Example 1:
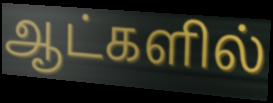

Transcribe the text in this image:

ஆட்களில்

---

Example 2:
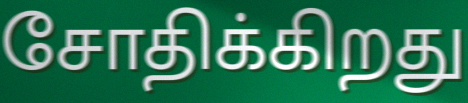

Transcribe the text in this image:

சோதிக்கிறது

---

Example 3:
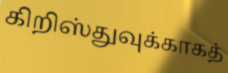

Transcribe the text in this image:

கிறிஸ்துவுக்காகத்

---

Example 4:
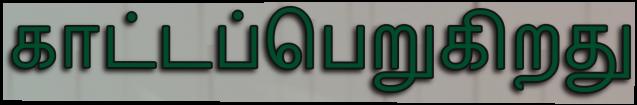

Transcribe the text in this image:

காட்டப்பெறுகிறது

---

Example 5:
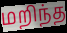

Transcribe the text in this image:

மறிந்த